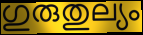
ഗുരുതുല്യം